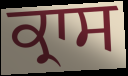
ਕ੍ਰਾਸ